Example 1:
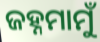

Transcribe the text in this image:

ଜହ୍ନମାମୁଁ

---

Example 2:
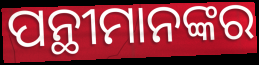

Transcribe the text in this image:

ପନ୍ଥୀମାନଙ୍କର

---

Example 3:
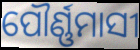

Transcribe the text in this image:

ପୌର୍ଣ୍ଣମାସୀ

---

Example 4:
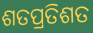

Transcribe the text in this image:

ଶତପ୍ରତିଶତ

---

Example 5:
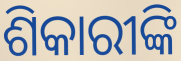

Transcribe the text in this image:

ଶିକାରୀଙ୍କି